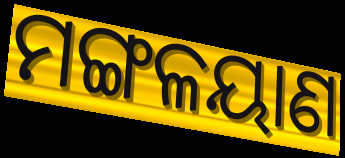
ମଙ୍ଗଳୟାଣ